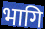
भागि